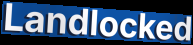
Landlocked